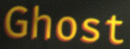
Ghost